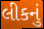
લીકનું